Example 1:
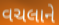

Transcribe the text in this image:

વચલાને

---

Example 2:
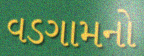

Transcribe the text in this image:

વડગામનો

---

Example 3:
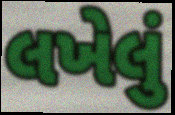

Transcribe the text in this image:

લખેલું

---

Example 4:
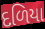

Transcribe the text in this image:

દળિયા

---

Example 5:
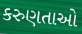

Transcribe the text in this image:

કરુણતાઓ